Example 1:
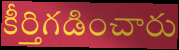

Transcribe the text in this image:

కీర్తిగడించారు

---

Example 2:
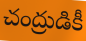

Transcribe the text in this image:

చంద్రుడికీ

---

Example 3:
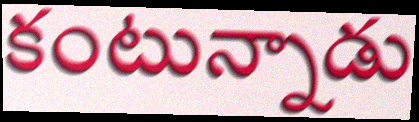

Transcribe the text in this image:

కంటున్నాడు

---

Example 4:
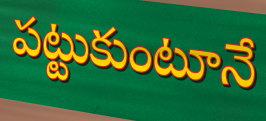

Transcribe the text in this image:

పట్టుకుంటూనే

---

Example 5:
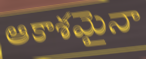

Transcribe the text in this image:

ఆకాశమైనా